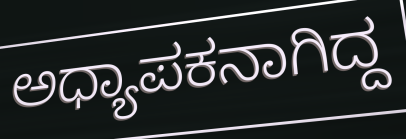
ಅಧ್ಯಾಪಕನಾಗಿದ್ದ